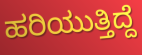
ಹರಿಯುತ್ತಿದ್ದೆ